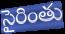
సైరింతు